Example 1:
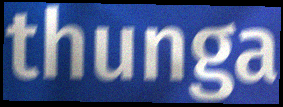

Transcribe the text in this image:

thunga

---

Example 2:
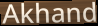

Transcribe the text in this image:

Akhand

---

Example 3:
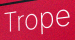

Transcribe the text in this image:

Trope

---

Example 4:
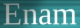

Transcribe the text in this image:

Enam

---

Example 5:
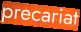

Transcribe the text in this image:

precariat